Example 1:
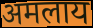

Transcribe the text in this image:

अमलाय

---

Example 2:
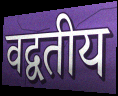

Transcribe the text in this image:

वद्वतीय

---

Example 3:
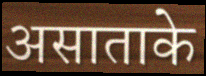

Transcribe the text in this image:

असाताके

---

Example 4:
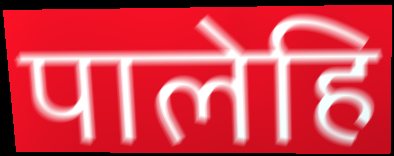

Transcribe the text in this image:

पालेहि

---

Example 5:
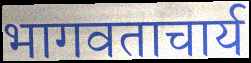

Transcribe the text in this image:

भागवताचार्य